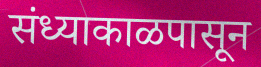
संध्याकाळपासून